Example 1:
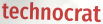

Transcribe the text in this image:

technocrat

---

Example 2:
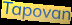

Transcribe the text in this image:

Tapovan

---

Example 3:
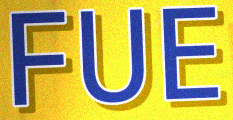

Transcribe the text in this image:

FUE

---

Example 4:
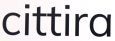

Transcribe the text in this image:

cittira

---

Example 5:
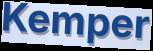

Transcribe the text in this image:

Kemper